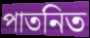
পাতনিত